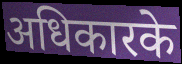
अधिकारके